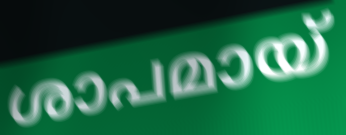
ശാപമായ്